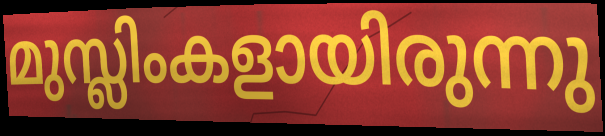
മുസ്ലിംകളായിരുന്നു